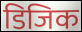
डिजिक